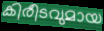
കിരീടവുമായ